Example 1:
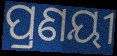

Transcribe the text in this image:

ପ୍ରଣୟୀ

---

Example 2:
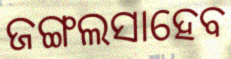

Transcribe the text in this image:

ଜଙ୍ଗଲସାହେବ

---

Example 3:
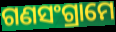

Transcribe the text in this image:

ଗଣସଂଗ୍ରାମେ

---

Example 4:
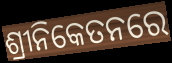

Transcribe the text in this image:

ଶ୍ରୀନିକେତନରେ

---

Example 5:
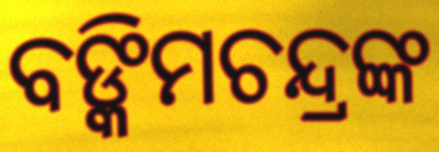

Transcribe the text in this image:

ବଙ୍କିମଚନ୍ଦ୍ରଙ୍କ